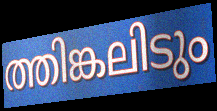
ത്തിങ്കലിടും